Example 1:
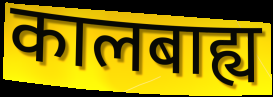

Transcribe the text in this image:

कालबाह्य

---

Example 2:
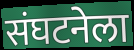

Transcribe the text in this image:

संघटनेला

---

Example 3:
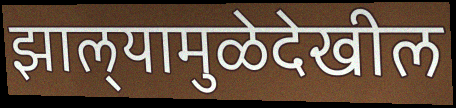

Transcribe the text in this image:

झाल्यामुळेदेखील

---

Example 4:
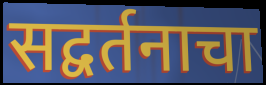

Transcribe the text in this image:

सद्वर्तनाचा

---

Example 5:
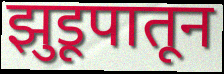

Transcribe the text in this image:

झुडूपातून